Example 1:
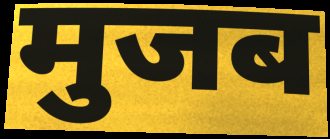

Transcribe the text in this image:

मुजब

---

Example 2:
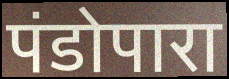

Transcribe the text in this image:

पंडोपारा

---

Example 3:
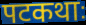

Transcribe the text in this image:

पटकथाः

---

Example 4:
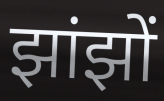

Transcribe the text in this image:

झांझों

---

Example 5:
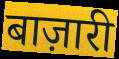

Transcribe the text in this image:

बाज़ारी